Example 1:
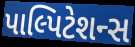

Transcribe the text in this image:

પાલ્પિટેશન્સ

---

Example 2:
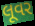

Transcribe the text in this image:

લૂવર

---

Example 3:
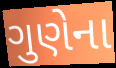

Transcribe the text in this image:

ગુણેના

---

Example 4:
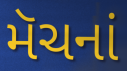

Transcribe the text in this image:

મૅચનાં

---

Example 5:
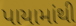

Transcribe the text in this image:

પાયામાંથી